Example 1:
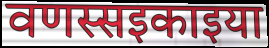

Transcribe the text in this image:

वणस्सइकाइया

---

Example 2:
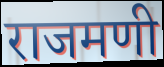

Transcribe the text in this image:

राजमणी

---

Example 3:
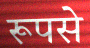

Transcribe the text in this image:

रूपसे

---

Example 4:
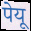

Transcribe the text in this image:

पेयू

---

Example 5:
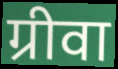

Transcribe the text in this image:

ग्रीवा